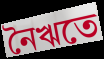
নৈঋতে